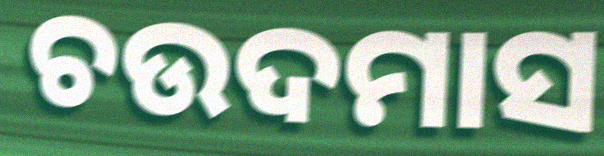
ଚଉଦମାସ